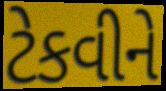
ટેકવીને